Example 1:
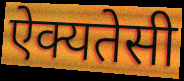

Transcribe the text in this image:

ऐक्यतेसी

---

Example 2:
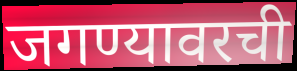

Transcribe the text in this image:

जगण्यावरची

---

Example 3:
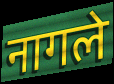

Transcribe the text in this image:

नागले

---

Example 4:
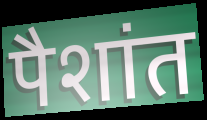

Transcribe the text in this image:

पैशांत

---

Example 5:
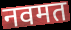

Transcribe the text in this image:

नवमत